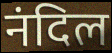
नंदिल